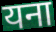
यना